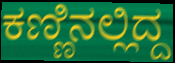
ಕಣ್ಣಿನಲ್ಲಿದ್ದ